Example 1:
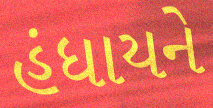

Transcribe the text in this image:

હંધાયને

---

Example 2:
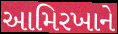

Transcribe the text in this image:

આમિરખાને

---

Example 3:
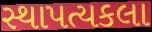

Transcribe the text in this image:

સ્થાપત્યકલા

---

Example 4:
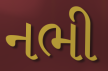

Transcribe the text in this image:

નભી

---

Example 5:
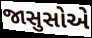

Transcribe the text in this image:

જાસુસોએ